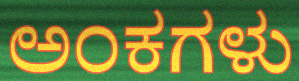
ಅಂಕಗಳು